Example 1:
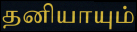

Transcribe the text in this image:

தனியாயும்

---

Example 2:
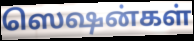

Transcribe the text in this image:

ஸெஷன்கள்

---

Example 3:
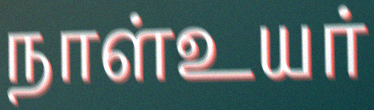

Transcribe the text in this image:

நாள்உயர்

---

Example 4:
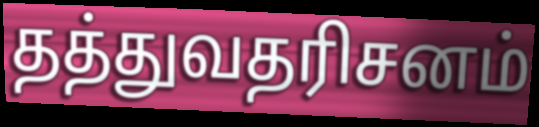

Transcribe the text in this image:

தத்துவதரிசனம்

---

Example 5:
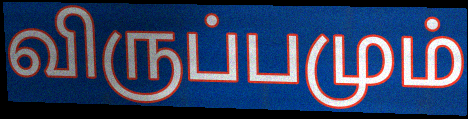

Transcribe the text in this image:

விருப்பமும்